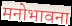
मनोभावना